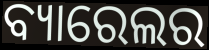
ବ୍ୟାରେଲର